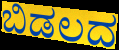
ಬಿಡಲದ